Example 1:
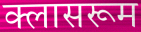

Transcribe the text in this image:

क्‍लासरूम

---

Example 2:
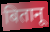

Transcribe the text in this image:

बितानू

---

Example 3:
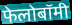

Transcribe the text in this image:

फेलोबॉमी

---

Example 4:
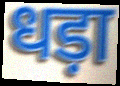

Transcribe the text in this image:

धड़ा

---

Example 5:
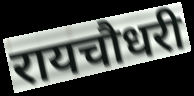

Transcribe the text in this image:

रायचौधरी